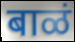
बाळं